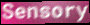
Sensory